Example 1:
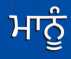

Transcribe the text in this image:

ਮਾਨੂੰ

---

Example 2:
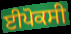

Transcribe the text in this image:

ਈਪੋਕਸੀ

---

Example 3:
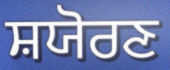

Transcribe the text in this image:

ਸ਼ਯੋਰਣ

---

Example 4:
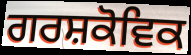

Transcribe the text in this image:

ਗਰਸ਼ਕੋਵਿਕ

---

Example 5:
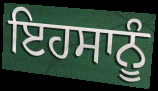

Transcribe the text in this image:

ਇਹਸਾਨੂੰ